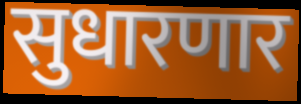
सुधारणार